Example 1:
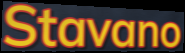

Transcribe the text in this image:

Stavano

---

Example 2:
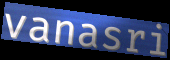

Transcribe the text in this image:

vanasri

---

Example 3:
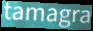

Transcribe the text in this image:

tamagra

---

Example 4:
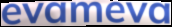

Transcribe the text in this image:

evameva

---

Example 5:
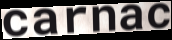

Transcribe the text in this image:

carnac